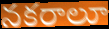
నకరాలూ